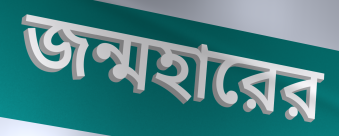
জন্মহারের